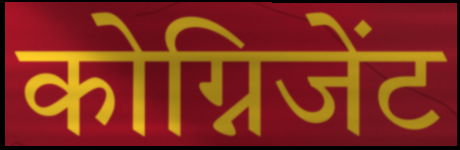
कोग्निजेंट